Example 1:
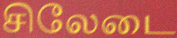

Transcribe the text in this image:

சிலேடை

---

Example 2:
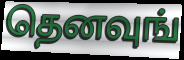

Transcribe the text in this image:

தெனவுங்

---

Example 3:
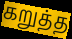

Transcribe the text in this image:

கறுத்த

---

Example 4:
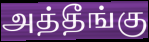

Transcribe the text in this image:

அத்தீங்கு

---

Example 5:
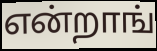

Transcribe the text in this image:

என்றாங்